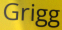
Grigg